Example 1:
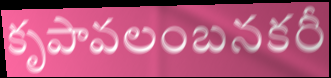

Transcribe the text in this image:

కృపావలంబనకరీ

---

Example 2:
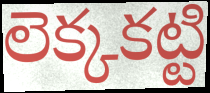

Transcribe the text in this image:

లెక్కకట్టి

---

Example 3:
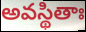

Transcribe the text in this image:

అవస్థితాః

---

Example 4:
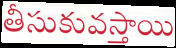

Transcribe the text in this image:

తీసుకువస్తాయి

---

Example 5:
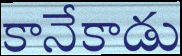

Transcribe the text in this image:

కానేకాడు